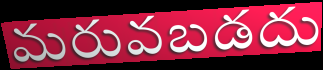
మరువబడదు